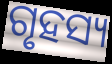
ଗୃହସ୍ୟ